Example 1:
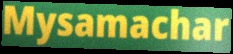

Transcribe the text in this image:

Mysamachar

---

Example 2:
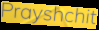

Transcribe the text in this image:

Prayshchit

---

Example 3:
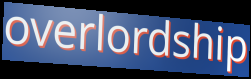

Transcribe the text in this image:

overlordship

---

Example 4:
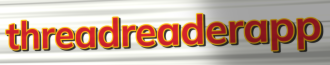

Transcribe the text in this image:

threadreaderapp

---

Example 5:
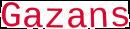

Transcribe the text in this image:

Gazans